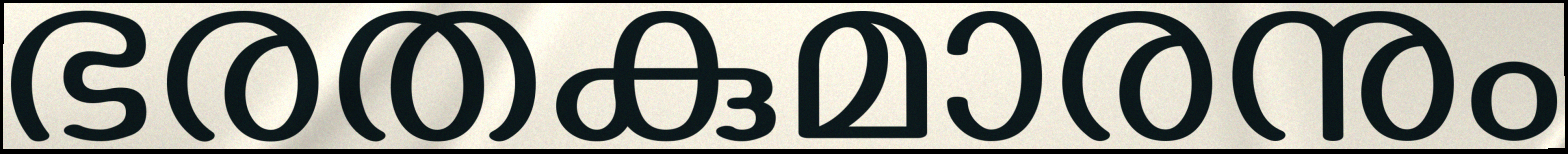
ഭരതകുമാരനും